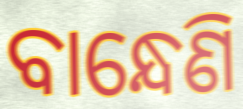
ବାନ୍ଧେଣି